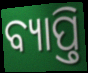
ବ୍ୟାପ୍ତି